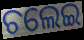
ଚଲେଇ